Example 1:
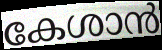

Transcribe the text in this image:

കേശാൻ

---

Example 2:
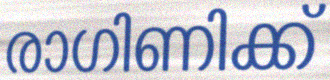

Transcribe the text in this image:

രാഗിണിക്ക്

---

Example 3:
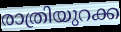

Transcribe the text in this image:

രാത്രിയുറക്ക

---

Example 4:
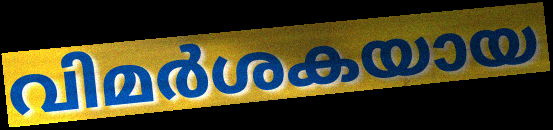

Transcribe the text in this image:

വിമർശകയായ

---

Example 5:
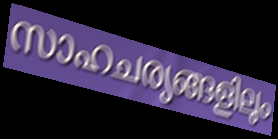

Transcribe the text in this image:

സാഹചര്യങ്ങളിലും